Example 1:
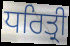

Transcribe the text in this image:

ਧਰਿਤ੍ਰੀ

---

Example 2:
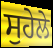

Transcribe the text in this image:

ਸੁਹੇਲੇ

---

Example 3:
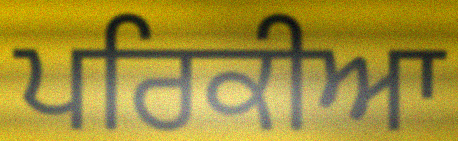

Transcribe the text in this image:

ਪਰਿਕੀਆ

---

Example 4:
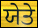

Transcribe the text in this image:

ਯੇਤੇ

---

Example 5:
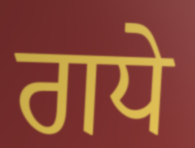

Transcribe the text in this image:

ਗਧੇ